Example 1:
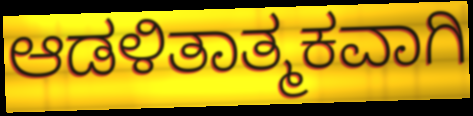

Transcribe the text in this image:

ಆಡಳಿತಾತ್ಮಕವಾಗಿ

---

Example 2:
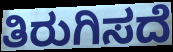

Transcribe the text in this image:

ತಿರುಗಿಸದೆ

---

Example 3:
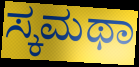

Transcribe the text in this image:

ಸ್ಕಮಥಾ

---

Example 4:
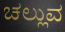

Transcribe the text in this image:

ಚಲ್ಲುವ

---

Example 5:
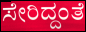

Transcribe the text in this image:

ಸೇರಿದ್ದಂತೆ